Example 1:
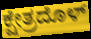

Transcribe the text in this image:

ಕ್ಷೇತ್ರದೊಳ್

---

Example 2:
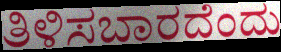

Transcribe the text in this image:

ತಿಳಿಸಬಾರದೆಂದು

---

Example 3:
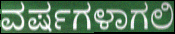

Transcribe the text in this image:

ವರ್ಷಗಳಾಗಲಿ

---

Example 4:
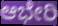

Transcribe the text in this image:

ಆಭೇರಿ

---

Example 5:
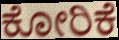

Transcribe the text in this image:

ಕೋರಿಕೆ